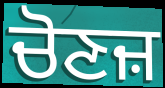
ਚੋਣਜ਼